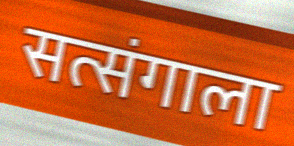
सत्संगाला